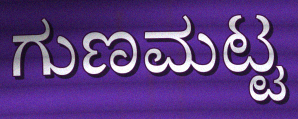
ಗುಣಮಟ್ಟ